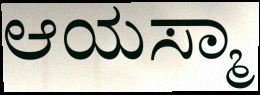
ಆಯಸ್ಮಾ